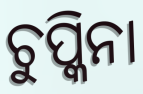
ଚୁପ୍କିନା